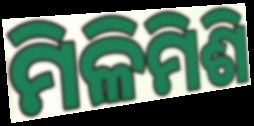
ମିଳିମିଶି